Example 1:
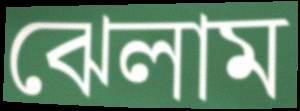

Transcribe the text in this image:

ঝেলাম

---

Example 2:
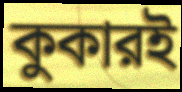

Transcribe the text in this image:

কুকারই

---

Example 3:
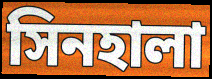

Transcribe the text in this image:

সিনহালা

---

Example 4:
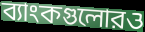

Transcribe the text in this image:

ব্যাংকগুলোরও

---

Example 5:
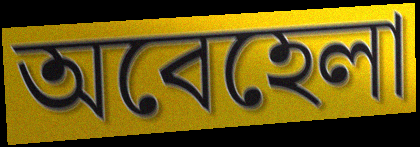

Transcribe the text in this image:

অবেহেলা